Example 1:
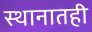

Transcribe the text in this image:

स्थानातही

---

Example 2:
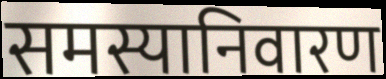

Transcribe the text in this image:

समस्यानिवारण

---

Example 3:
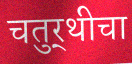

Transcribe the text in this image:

चतुर्थीचा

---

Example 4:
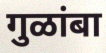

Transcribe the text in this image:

गुळांबा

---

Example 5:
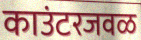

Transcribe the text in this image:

काउंटरजवळ